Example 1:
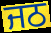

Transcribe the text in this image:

ਜਠ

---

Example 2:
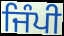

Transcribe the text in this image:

ਜਿੰਪੀ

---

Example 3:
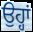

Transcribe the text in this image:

ਉਹ੍ਹਾਂ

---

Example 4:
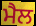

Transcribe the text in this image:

ਮੈਲ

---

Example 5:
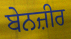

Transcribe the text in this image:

ਬੇਨਜ਼ੀਰ